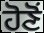
ਹੋਣੋਂ